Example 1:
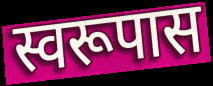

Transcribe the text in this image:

स्वरूपास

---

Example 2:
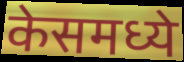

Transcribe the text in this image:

केसमध्ये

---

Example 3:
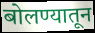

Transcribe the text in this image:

बोलण्यातून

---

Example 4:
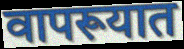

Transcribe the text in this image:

वापरूयात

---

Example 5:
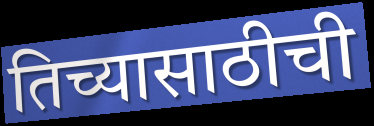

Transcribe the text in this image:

तिच्यासाठीची